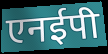
एनईपी